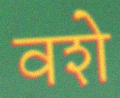
वशे